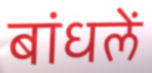
बांधलें